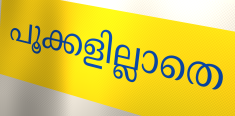
പൂക്കളില്ലാതെ